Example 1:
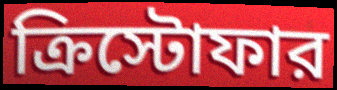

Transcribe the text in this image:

ক্রিস্টোফার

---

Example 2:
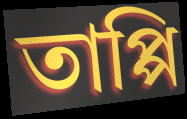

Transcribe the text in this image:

তাপ্পি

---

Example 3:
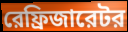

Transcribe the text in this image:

রেফ্রিজারেটর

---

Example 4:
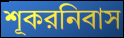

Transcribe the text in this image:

শূকরনিবাস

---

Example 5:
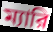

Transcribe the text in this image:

ম্যারি